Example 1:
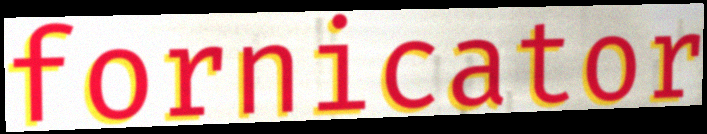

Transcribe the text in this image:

fornicator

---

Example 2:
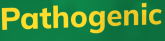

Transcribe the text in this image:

Pathogenic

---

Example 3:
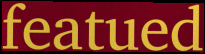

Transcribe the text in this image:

featued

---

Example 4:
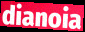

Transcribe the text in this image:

dianoia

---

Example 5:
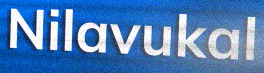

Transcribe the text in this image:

Nilavukal